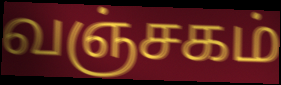
வஞ்சகம்